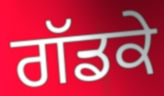
ਗੱਡਕੇ